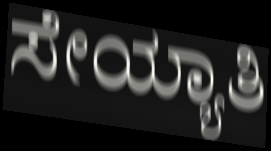
ಸೇಯ್ಯಾತಿ